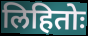
लिहितोः